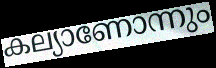
കല്യാണോന്നും